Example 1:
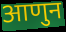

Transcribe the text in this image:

आणुन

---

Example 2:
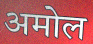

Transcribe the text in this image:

अमोल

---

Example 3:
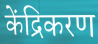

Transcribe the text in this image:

केंद्रिकरण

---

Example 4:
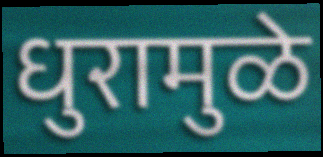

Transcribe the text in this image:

धुरामुळे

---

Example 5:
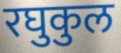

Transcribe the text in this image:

रघुकुल